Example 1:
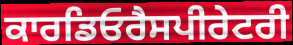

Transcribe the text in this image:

ਕਾਰਡਿਓਰੈਸਪੀਰੇਟਰੀ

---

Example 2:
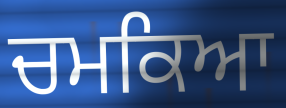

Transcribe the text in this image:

ਚਮਕਿਆ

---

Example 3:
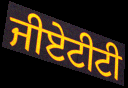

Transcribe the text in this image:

ਜੀਏਟੀਟੀ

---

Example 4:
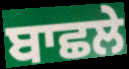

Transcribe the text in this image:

ਬਾਛਲੇ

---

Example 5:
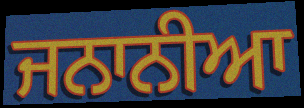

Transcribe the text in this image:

ਜਨਾਨੀਆ